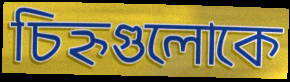
চিহ্নগুলোকে